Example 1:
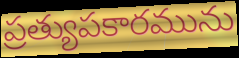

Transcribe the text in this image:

ప్రత్యుపకారమును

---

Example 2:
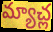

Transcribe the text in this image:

మ్యాచ్ల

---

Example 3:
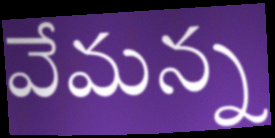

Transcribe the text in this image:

వేమన్న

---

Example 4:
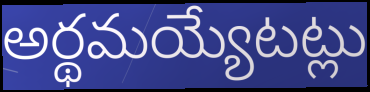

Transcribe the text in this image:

అర్థమయ్యేటట్లు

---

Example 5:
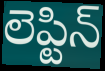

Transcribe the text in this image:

లెప్టిన్